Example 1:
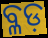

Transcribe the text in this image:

ବ୍ଳଡ଼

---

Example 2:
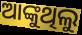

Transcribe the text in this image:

ଆଙ୍କୁଥିଲୁ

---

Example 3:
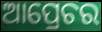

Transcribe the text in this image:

ଆପ୍ରେଚର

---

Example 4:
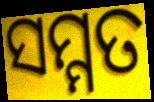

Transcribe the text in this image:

ସମ୍ମତ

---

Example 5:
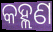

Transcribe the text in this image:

କହ୍ଲଣ